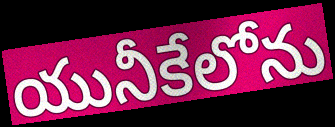
యునీకేలోను